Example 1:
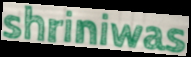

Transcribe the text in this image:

shriniwas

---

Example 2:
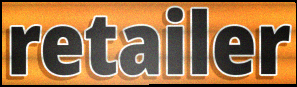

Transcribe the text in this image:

retailer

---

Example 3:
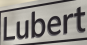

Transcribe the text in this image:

Lubert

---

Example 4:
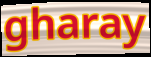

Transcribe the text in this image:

gharay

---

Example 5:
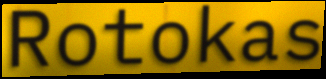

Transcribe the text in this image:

Rotokas